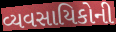
વ્યવસાયિકોની